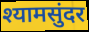
श्यामसुंदर